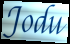
Jodu